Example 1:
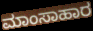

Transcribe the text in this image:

ಮಾಂಸಾಹಾರ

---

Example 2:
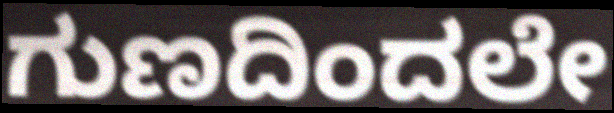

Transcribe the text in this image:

ಗುಣದಿಂದಲೇ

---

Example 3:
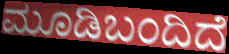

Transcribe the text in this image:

ಮೂಡಿಬಂದಿದೆ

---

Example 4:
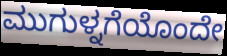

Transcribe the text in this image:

ಮುಗುಳ್ನಗೆಯೊಂದೇ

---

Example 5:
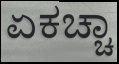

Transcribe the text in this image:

ಏಕಚ್ಚಾ